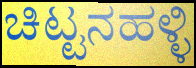
ಚಿಟ್ಟನಹಳ್ಳಿ